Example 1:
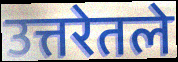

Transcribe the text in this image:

उत्तरेतले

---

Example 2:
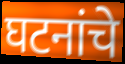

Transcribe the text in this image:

घटनांचे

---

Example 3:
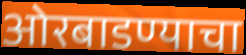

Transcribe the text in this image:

ओरबाडण्याचा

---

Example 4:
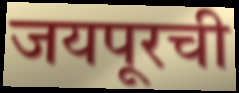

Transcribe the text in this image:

जयपूरची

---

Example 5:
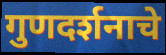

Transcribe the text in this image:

गुणदर्शनाचे